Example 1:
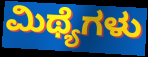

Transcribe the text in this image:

ಮಿಥ್ಯೆಗಳು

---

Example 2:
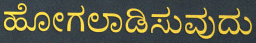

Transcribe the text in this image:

ಹೋಗಲಾಡಿಸುವುದು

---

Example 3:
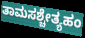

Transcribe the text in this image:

ತಾಮಸಶ್ಚೇತ್ಯಹಂ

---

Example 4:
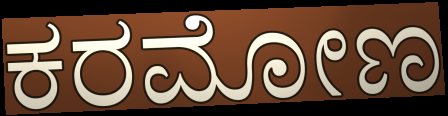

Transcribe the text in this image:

ಕರಮೋಣ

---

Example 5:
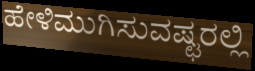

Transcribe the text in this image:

ಹೇಳಿಮುಗಿಸುವಷ್ಟರಲ್ಲಿ